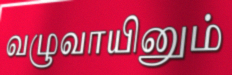
வழுவாயினும்